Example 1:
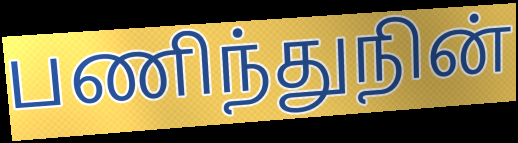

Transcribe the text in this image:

பணிந்துநின்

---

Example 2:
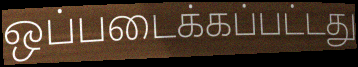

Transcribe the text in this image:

ஒப்படைக்கப்பட்டது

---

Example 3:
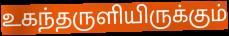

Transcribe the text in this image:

உகந்தருளியிருக்கும்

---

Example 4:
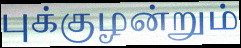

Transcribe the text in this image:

புக்குழன்றும்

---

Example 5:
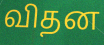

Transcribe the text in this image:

விதன